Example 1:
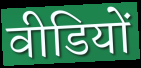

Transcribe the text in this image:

वीडियों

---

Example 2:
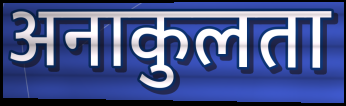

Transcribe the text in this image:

अनाकुलता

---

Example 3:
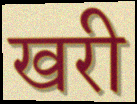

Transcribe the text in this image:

खरी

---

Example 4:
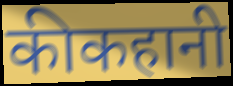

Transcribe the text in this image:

कीकहानी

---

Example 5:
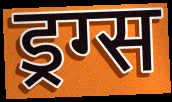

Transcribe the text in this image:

ड्रग्स